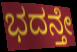
ಭದನ್ತೇ